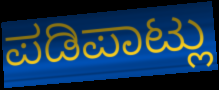
ಪಡಿಪಾಟ್ಲು